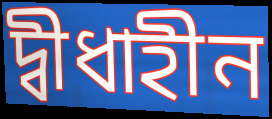
দ্বীধাহীন